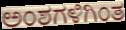
ಅಂಶಗಳಿಗಿಂತ